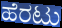
ಹೆರಟು